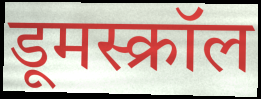
डूमस्क्रॉल